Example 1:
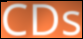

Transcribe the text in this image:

CDs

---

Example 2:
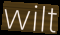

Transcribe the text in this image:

wilt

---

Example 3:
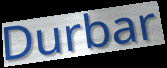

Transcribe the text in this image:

Durbar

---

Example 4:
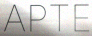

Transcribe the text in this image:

APTE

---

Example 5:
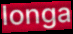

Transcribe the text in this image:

longa